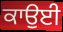
ਕਾਉਈ